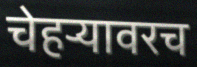
चेहर्‍यावरच